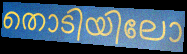
തൊടിയിലോ